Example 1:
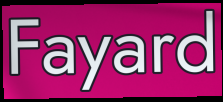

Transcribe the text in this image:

Fayard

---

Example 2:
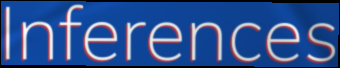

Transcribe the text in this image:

Inferences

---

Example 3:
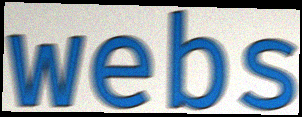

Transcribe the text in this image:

webs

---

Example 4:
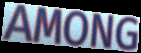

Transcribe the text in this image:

AMONG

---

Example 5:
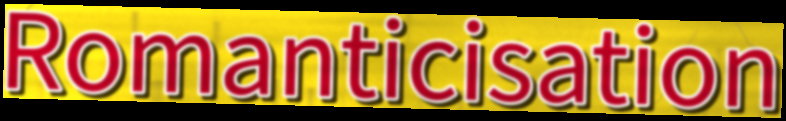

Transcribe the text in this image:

Romanticisation